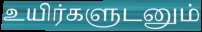
உயிர்களுடனும்